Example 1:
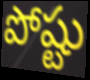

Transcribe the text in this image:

పోష్టు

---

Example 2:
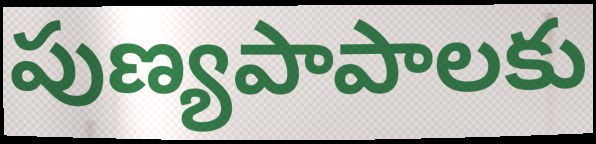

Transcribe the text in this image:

పుణ్యపాపాలకు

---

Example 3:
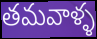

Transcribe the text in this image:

తమవాళ్ళ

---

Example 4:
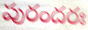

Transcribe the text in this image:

పురందరః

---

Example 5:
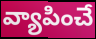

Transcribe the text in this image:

వ్యాపించే